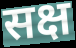
सक्ष